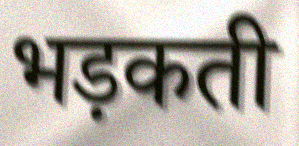
भड़कती